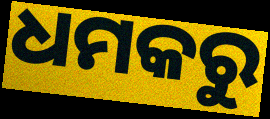
ଧମକରୁ